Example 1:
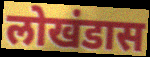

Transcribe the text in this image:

लोखंडास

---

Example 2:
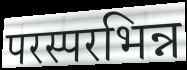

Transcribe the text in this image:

परस्परभिन्न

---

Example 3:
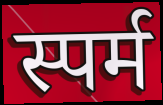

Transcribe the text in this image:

स्पर्म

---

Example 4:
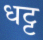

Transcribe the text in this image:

धट्ट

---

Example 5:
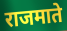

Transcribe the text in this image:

राजमाते